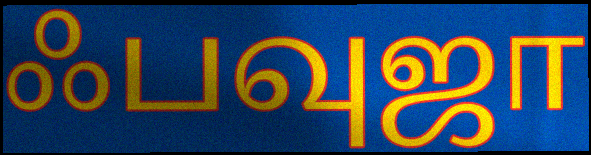
ஃபவுஜா